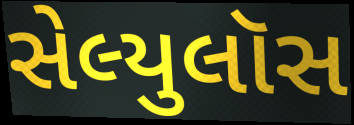
સેલ્યુલૉસ